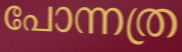
പോന്നത്ര